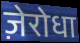
ज़ेरोधा